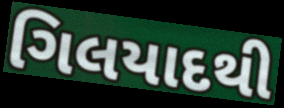
ગિલયાદથી